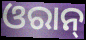
ଓରାନ୍